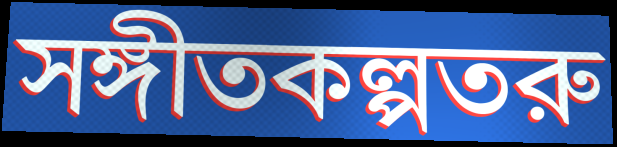
সঙ্গীতকল্পতরু